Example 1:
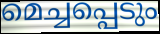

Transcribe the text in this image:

മെച്ചപ്പെടും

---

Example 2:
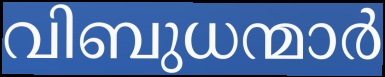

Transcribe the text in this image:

വിബുധന്മാർ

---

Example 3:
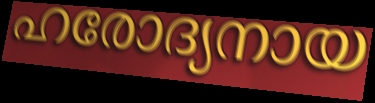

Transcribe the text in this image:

ഹരോദ്യനായ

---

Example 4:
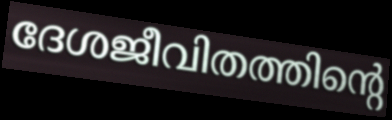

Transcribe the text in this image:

ദേശജീവിതത്തിന്റെ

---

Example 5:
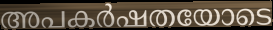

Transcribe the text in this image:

അപകർഷതയോടെ